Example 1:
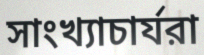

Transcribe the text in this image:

সাংখ্যাচার্যরা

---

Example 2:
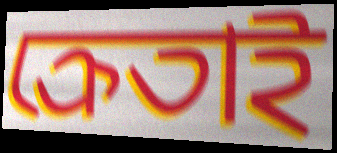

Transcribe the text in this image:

ক্রেতাই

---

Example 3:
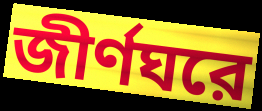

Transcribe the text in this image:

জীর্ণঘরে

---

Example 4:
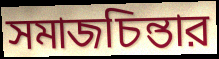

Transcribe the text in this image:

সমাজচিন্তার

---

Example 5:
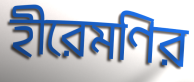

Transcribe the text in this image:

হীরেমণির